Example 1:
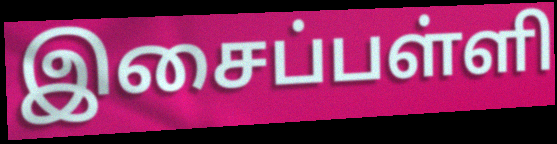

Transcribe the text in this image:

இசைப்பள்ளி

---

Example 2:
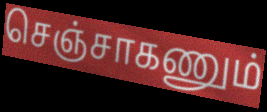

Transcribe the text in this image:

செஞ்சாகணும்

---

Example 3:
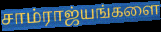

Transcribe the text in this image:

சாம்ராஜ்யங்களை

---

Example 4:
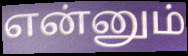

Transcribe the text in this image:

என்னும்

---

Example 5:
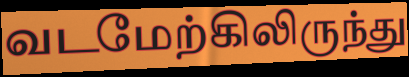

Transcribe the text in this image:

வடமேற்கிலிருந்து